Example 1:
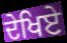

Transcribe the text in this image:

ਦੇਖਿਏ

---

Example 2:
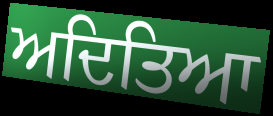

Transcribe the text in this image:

ਅਦਿਤਿਆ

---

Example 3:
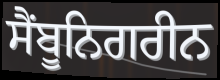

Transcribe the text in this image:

ਸੈਂਬੂਨਿਗਰੀਨ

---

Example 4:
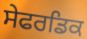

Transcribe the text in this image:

ਸੇਫਰਡਿਕ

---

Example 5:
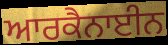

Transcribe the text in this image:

ਆਰਕੈਨਾਈਨ